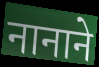
नानाने